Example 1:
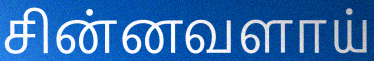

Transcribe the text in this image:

சின்னவளாய்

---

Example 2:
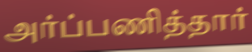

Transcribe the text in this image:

அர்ப்பணித்தார்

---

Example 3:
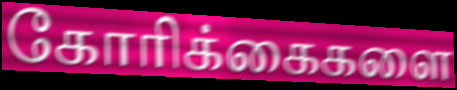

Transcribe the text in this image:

கோரிக்கைகளை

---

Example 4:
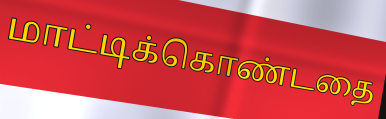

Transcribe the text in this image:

மாட்டிக்கொண்டதை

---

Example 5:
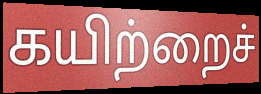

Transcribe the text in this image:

கயிற்றைச்